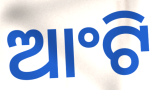
ଆଂଟି